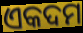
ଏକଦମ